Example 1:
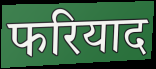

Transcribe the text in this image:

फरियाद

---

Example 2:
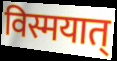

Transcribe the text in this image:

विस्मयात्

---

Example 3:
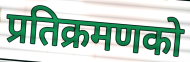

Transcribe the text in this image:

प्रतिक्रमणको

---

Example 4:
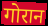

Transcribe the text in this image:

गोरान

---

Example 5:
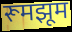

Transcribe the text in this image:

रूमझूम